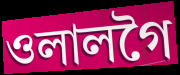
ওলালগৈ